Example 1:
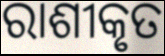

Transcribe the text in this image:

ରାଶୀକୃତ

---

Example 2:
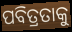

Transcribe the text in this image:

ପବିତ୍ରତାକୁ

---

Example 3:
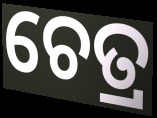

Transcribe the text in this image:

ଚେତ୍ର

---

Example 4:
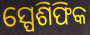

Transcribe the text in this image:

ସ୍ପେଶିଫିକ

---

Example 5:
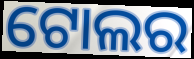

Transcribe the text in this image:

ଟୋଲର